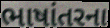
ભાષાંતરના